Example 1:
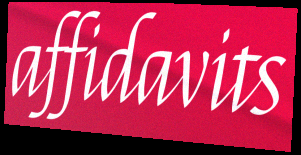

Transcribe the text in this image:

affidavits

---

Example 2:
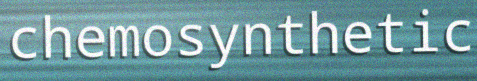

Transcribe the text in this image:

chemosynthetic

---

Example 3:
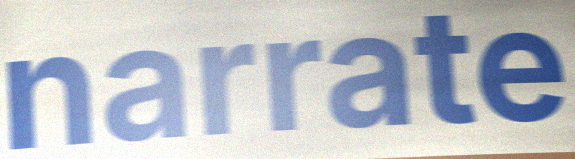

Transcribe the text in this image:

narrate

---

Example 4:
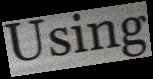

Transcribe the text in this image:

Using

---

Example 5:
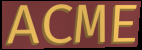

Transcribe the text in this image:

ACME